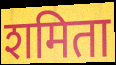
शमिता